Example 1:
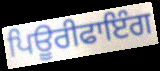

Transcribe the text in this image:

ਪਿਊਰੀਫਾਇੰਗ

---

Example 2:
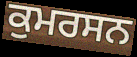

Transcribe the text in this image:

ਕੁਮਰਸਨ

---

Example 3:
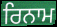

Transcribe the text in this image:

ਰਿਨਾਮ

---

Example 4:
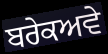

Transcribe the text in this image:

ਬਰੇਕਅਵੇ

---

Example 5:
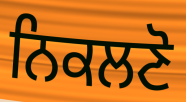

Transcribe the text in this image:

ਨਿਕਲਣੋ